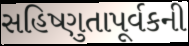
સહિષ્ણુતાપૂર્વકની